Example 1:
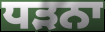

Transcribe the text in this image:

ਧੜਨਾ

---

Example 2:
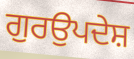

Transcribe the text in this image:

ਗੁਰਉਪਦੇਸ਼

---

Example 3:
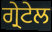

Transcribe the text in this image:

ਗ੍ਰੇਟੇਲ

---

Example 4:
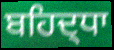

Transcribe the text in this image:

ਬਹਿਦ੍ਧਾ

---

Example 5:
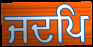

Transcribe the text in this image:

ਜਦਪਿ